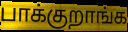
பாக்குறாங்க